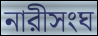
নারীসংঘ